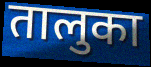
तालुका